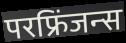
परफ्रिंजन्स